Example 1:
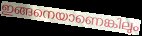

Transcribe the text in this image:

ഇങ്ങനെയാണെങ്കിലും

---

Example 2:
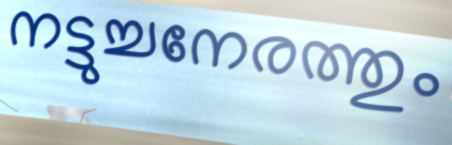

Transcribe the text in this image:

നട്ടുച്ചനേരത്തും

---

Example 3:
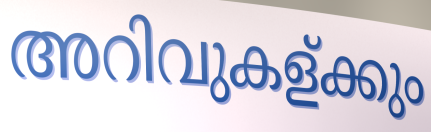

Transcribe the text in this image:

അറിവുകള്ക്കും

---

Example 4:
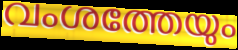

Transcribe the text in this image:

വംശത്തേയും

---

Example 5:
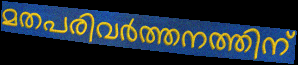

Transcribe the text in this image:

മതപരിവർത്തനത്തിന്